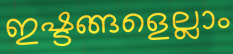
ഇഷ്ടങ്ങളെല്ലാം